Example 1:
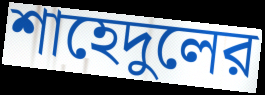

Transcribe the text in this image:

শাহেদুলের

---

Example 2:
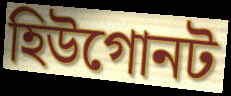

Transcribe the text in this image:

হিউগোনট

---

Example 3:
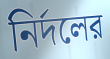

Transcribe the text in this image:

নির্দলের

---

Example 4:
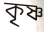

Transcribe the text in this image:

কৃষ্ণ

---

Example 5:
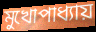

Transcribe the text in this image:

মুখোপাধ্যায়